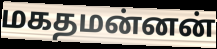
மகதமன்னன்